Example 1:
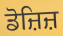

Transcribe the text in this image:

ਡੋਜ਼ਿਜ਼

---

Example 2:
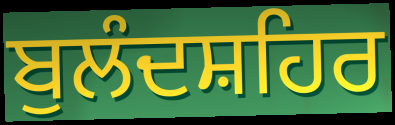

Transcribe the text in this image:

ਬੁਲੰਦਸ਼ਹਿਰ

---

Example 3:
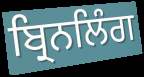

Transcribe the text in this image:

ਬ੍ਰਿਨਲਿੰਗ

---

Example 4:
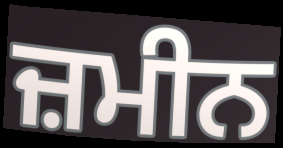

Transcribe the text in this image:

ਜ਼ਮੀਨ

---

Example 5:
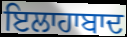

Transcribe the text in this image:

ਇਲਾਹਾਬਾਦ